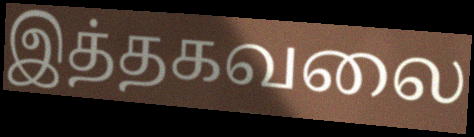
இத்தகவலை